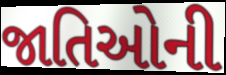
જાતિઓની